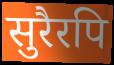
सुरैरपि